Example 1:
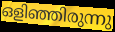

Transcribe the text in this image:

ഒളിഞ്ഞിരുന്നു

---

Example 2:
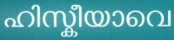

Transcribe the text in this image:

ഹിസ്കീയാവെ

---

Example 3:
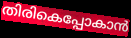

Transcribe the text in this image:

തിരികെപ്പോകാൻ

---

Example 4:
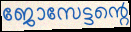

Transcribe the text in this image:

ജോസേട്ടന്റെ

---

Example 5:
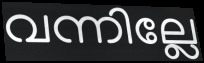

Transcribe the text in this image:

വന്നില്ലേ